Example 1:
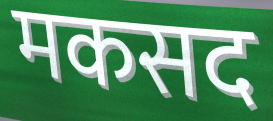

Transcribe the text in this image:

मकसद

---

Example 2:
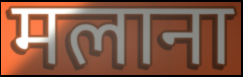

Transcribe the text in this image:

मलाना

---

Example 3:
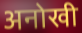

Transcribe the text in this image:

अनोखी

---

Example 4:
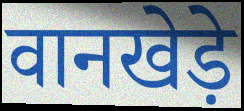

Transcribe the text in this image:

वानखेड़े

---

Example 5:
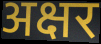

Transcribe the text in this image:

अक्षर